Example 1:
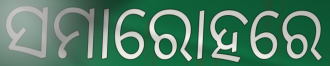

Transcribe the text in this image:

ସମାରୋହରେ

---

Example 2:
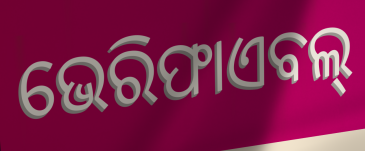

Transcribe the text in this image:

ଭେରିଫାଏବଲ୍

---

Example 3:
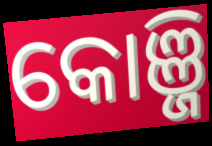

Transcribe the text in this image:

କୋଞ୍ଜି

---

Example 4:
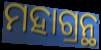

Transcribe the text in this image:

ମହାଗ୍ରନ୍ଥ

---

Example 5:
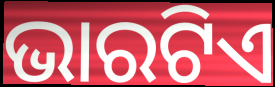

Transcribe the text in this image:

ଭାରଟିଏ